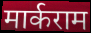
मार्कराम